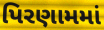
પિરણામમાં